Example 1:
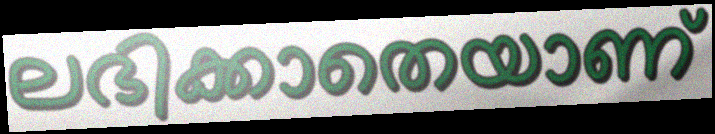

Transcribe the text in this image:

ലഭിക്കാതെയാണ്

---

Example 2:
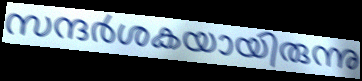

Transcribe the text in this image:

സന്ദർശകയായിരുന്നു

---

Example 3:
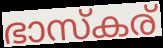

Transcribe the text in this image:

ഭാസ്കര്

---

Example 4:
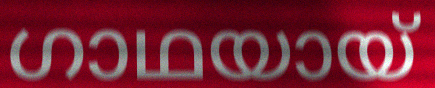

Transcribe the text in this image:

ഗാഥയായ്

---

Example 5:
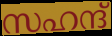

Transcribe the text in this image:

സഹന്ദ്